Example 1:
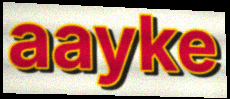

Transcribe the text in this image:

aayke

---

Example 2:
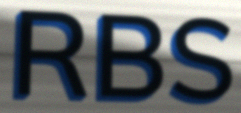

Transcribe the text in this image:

RBS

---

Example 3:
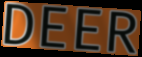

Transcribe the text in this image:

DEER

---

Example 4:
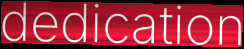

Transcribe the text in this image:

dedication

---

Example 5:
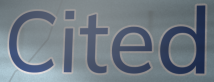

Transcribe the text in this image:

Cited